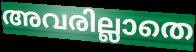
അവരില്ലാതെ